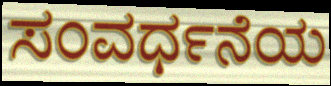
ಸಂವರ್ಧನೆಯ